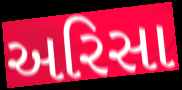
અરિસા